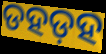
ଡହଡ଼ହ